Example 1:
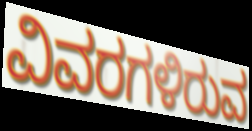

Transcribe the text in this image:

ವಿವರಗಳಿರುವ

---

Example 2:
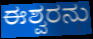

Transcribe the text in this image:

ಈಶ್ವರನು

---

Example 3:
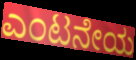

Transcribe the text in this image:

ಎಂಟನೇಯ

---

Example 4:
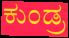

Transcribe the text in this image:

ಕುಂಡ್ರ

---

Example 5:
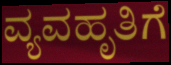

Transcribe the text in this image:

ವ್ಯವಹೃತಿಗೆ